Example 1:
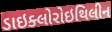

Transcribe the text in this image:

ડાઇક્લોરોઇથિલીન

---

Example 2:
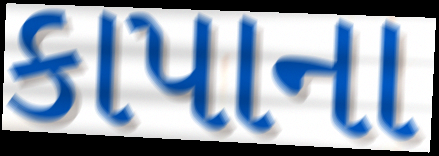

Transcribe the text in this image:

કાપાના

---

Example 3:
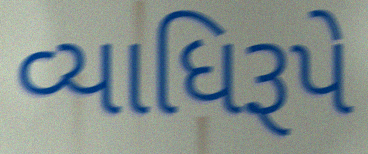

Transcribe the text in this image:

વ્યાધિરૂપે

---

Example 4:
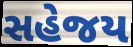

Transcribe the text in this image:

સહેજય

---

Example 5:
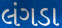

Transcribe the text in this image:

લંગડા